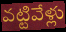
వట్టివేళ్లు